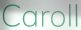
Caroll